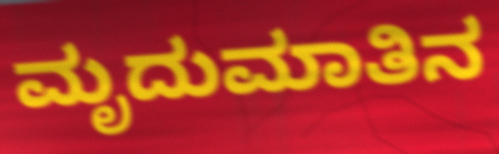
ಮೃದುಮಾತಿನ